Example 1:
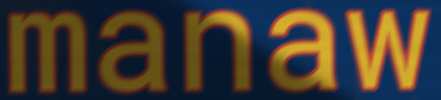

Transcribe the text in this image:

manaw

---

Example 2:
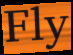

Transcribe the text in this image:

Fly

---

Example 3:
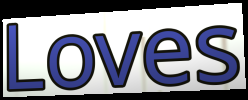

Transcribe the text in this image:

Loves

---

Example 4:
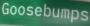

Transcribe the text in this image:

Goosebumps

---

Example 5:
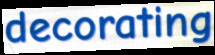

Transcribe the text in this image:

decorating